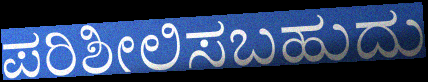
ಪರಿಶೀಲಿಸಬಹುದು